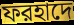
ফরহাদে